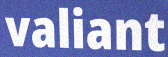
valiant